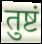
तुष्टं